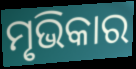
ମୃଭିକାର